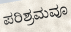
ಪರಿಶ್ರಮವೂ